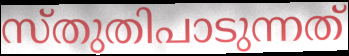
സ്തുതിപാടുന്നത്